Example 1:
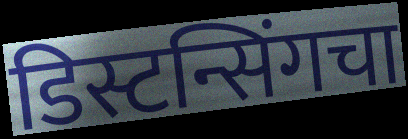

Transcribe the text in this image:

डिस्टन्सिंगचा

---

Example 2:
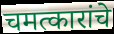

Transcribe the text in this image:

चमत्कारांचे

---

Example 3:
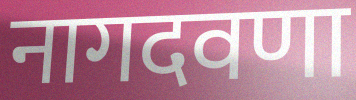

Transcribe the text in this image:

नागदवणा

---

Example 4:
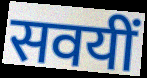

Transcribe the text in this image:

सवयीं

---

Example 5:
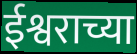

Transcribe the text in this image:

ईश्वराच्या